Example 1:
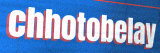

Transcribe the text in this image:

chhotobelay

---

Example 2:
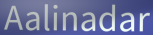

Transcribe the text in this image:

Aalinadar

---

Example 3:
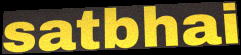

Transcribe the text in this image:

satbhai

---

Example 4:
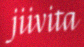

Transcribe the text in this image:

jiivita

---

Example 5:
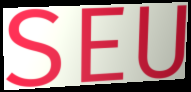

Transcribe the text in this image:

SEU